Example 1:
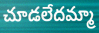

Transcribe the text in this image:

చూడలేదమ్మా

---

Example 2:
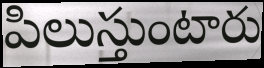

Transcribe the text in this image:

పిలుస్తుంటారు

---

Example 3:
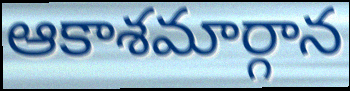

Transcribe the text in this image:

ఆకాశమార్గాన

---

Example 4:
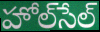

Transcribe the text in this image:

హోల్‌సేల్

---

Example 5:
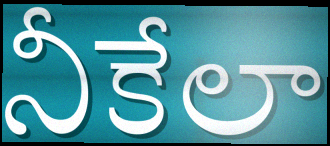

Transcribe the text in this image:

నీకేలా